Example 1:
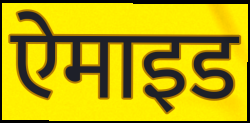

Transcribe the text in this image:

ऐमाइड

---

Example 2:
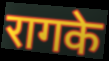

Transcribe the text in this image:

रागके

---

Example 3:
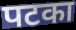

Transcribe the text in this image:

पटका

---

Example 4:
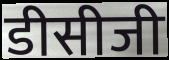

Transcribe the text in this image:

डीसीजी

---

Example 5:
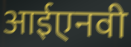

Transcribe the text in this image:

आईएनवी